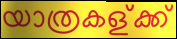
യാത്രകള്ക്ക്